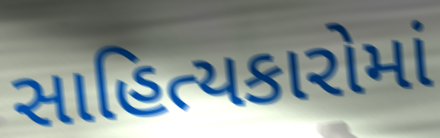
સાહિત્યકારોમાં